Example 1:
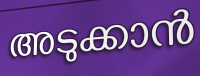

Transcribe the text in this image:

അടുക്കാൻ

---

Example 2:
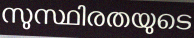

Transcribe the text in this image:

സുസ്ഥിരതയുടെ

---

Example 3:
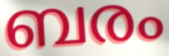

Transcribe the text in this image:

ബരം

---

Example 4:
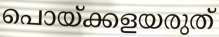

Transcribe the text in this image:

പൊയ്ക്കളയരുത്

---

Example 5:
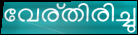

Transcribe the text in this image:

വേര്തിരിച്ചു